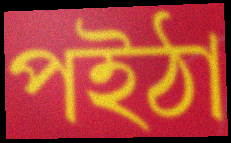
পইঠা